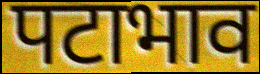
पटाभाव